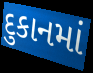
દુકાનમાં